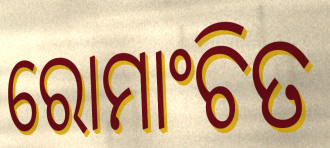
ରୋମାଂଚିତ